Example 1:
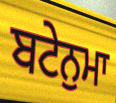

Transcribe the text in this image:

ਬਟੇਨੁਮਾ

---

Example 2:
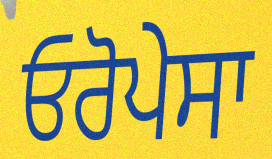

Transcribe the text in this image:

ਓਰੋਪੇਸਾ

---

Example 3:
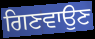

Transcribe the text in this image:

ਗਿਣਵਾਉਣ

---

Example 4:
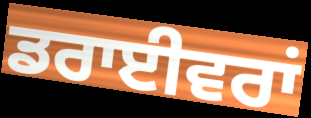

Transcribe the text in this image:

ਡਰਾਈਵਰਾਂ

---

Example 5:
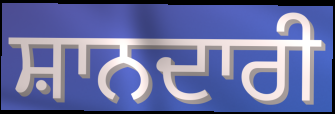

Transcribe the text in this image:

ਸ਼ਾਨਦਾਰੀ